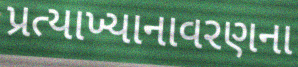
પ્રત્યાખ્યાનાવરણના